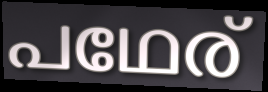
പഥേര്